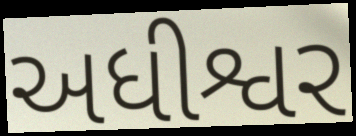
અધીશ્વર